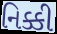
નિક્કી